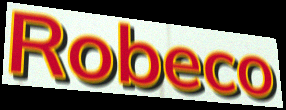
Robeco